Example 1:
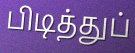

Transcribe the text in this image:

பிடித்துப்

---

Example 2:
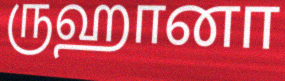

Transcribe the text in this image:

ருஹானா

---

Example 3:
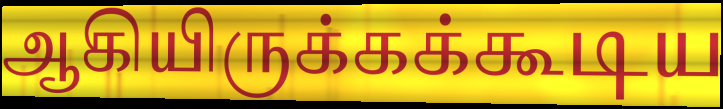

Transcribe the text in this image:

ஆகியிருக்கக்கூடிய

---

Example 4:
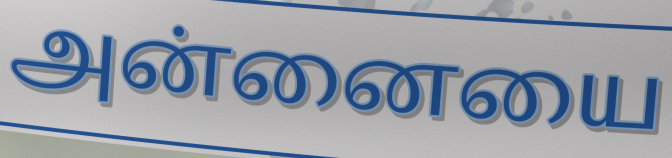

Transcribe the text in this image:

அன்னையை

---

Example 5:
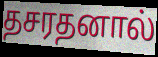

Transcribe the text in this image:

தசரதனால்